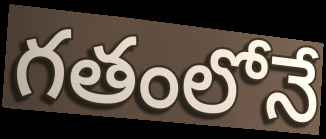
గతంలోనే